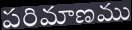
పరిమాణము